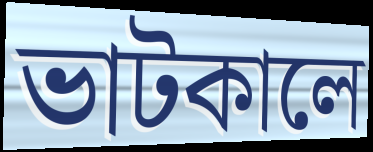
ভাটকালে